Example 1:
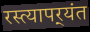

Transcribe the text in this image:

रस्त्यापर्यंत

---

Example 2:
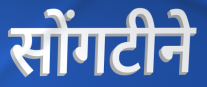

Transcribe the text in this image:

सोंगटीने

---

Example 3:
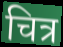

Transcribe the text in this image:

चित्र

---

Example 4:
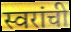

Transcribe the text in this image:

स्वरांची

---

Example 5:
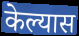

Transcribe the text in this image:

केल्यास